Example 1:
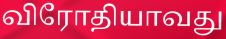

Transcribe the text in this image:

விரோதியாவது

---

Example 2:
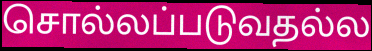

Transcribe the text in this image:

சொல்லப்படுவதல்ல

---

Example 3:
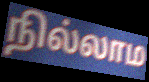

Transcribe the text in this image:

நில்லாம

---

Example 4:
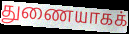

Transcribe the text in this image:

துணையாகக்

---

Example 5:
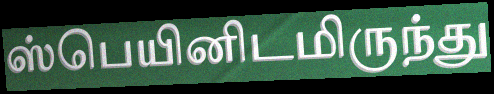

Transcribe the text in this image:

ஸ்பெயினிடமிருந்து